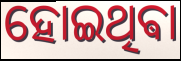
ହୋଇଥିଵା